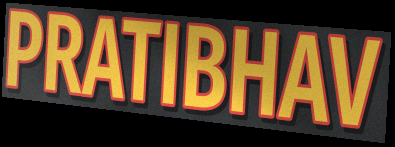
PRATIBHAV